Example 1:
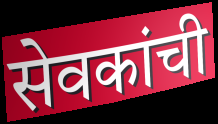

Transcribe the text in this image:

सेवकांची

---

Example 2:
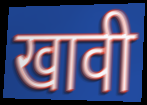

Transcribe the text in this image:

खावी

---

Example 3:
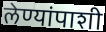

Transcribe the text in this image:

लेण्यांपाशी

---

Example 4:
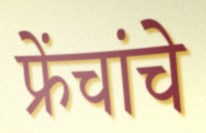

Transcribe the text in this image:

फ्रेंचांचे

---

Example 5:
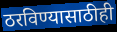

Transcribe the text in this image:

ठरविण्यासाठीही